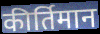
कीर्तिमान